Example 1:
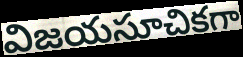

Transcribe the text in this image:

విజయసూచికగా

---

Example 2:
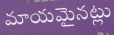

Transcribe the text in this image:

మాయమైనట్లు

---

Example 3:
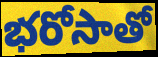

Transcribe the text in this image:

భరోసాతో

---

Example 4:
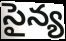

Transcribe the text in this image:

సైన్య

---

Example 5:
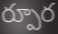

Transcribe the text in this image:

ర్పూర